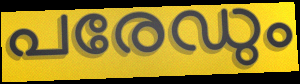
പരേഡും